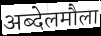
अब्देलमौला